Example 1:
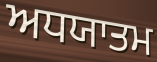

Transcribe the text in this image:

ਅਧਯਾਤਮ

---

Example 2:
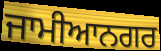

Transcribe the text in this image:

ਜਾਮੀਆਨਗਰ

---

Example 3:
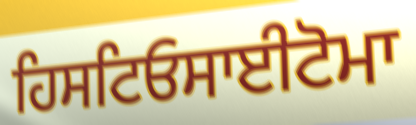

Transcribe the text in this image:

ਹਿਸਟਿਓਸਾਈਟੋਮਾ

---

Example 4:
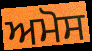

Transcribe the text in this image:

ਅਮੋਸ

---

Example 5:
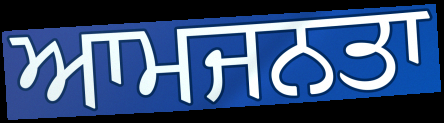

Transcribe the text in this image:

ਆਮਜਨਤਾ